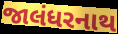
જાલંધરનાથ